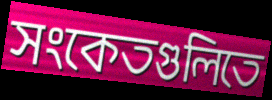
সংকেতগুলিতে